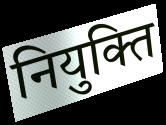
नियुक्‍ति